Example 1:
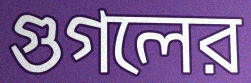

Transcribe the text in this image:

গুগলের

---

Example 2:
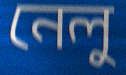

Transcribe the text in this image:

নেলু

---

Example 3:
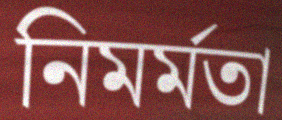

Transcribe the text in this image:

নিমর্মতা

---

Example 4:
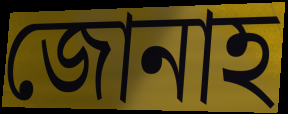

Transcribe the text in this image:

জোনাহ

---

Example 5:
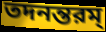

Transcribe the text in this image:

তদনন্তরম্